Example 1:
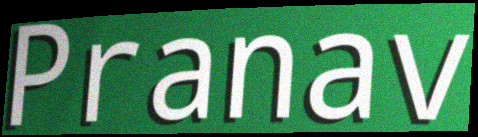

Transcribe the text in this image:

Pranav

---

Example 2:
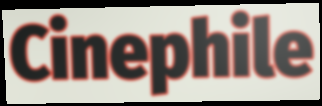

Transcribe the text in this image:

Cinephile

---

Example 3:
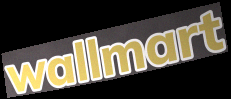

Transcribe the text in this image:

wallmart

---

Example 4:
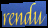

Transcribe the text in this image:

rendu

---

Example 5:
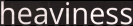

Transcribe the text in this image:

heaviness